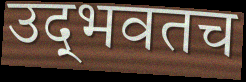
उद्‌भवतच